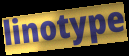
linotype